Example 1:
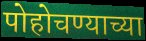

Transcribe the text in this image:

पोहोचण्याच्या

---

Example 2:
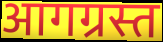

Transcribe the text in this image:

आगग्रस्त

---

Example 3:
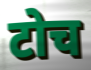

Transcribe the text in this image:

टोच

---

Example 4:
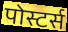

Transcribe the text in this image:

पोस्टर्स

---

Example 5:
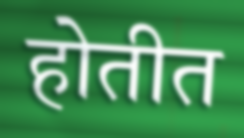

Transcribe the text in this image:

होतीत